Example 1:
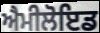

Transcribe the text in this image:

ਐਮੀਲੋਇਡ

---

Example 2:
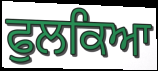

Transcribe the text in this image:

ਫੁਲਕਿਆ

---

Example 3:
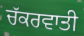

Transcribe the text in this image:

ਚੱਕਰਵਾਤੀ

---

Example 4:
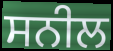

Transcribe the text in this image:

ਸਨੀਲ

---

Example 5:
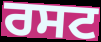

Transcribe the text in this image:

ਰਸਟ